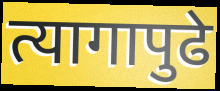
त्यागापुढे